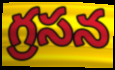
గ్రసన